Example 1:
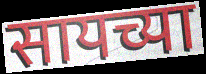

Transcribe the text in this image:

सायच्या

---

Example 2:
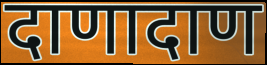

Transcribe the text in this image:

दाणादाण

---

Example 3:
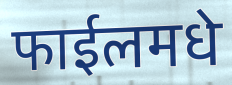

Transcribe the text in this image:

फाईलमधे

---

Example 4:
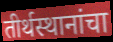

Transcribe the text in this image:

तीर्थस्थानांचा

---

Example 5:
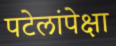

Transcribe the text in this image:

पटेलांपेक्षा